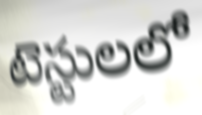
టెస్టులలో